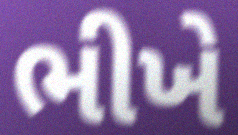
ભીખે